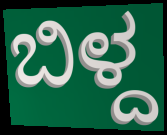
ಬಿಳ್ದ